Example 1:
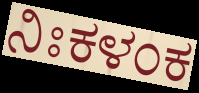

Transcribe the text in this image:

ನಿಃಕಳಂಕ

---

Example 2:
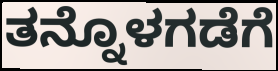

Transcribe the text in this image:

ತನ್ನೊಳಗಡೆಗೆ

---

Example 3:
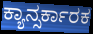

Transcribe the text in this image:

ಕ್ಯಾನ್ಸರ್ಕಾರಕ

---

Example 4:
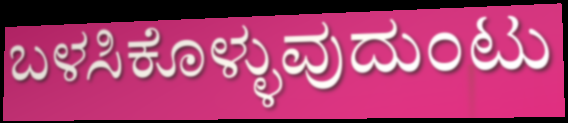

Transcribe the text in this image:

ಬಳಸಿಕೊಳ್ಳುವುದುಂಟು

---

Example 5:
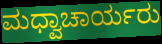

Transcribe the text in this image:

ಮಧ್ವಾಚಾರ್ಯರು